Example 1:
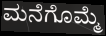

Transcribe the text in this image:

ಮನೆಗೊಮ್ಮೆ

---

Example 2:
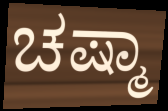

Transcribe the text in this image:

ಚಷ್ಮಾ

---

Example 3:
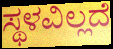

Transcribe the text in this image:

ಸ್ಥಳವಿಲ್ಲದೆ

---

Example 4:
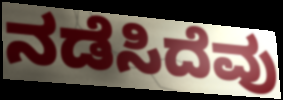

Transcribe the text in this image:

ನಡೆಸಿದೆವು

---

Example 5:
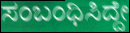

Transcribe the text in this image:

ಸಂಬಂಧಿಸಿದ್ದೇ